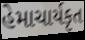
હેમાચાર્યકૃત